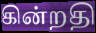
கின்றதி